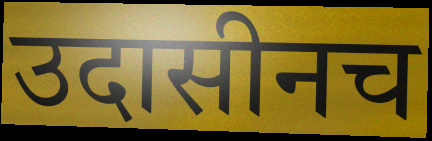
उदासीनच